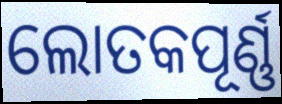
ଲୋତକପୂର୍ଣ୍ଣ